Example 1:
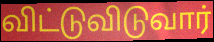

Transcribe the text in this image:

விட்டுவிடுவார்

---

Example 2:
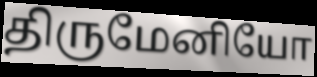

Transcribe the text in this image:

திருமேனியோ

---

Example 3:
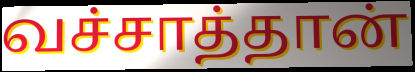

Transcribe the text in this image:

வச்சாத்தான்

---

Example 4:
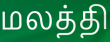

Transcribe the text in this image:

மலத்தி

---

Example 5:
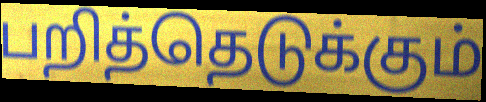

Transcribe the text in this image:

பறித்தெடுக்கும்